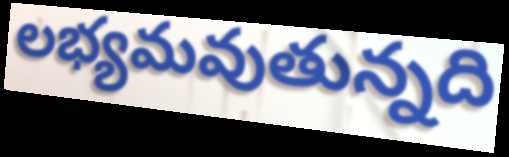
లభ్యమవుతున్నది